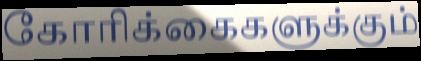
கோரிக்கைகளுக்கும்